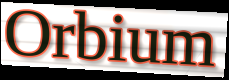
Orbium